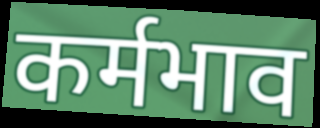
कर्मभाव